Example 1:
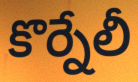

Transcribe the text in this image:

కొర్నేలీ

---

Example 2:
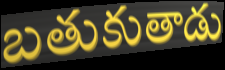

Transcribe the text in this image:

బతుకుతాడు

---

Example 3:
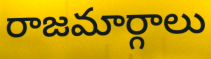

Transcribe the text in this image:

రాజమార్గాలు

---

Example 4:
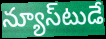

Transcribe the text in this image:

న్యూస్‌టుడే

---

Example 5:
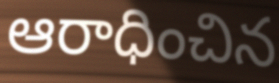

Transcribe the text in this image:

ఆరాధించిన